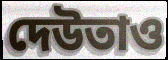
দেউতাও